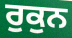
ਰੁਕੁਨ